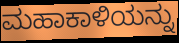
ಮಹಾಕಾಳಿಯನ್ನು